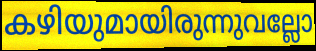
കഴിയുമായിരുന്നുവല്ലോ